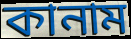
কানাম